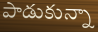
పాడుకున్నా